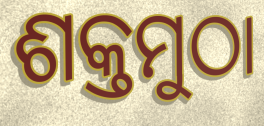
ଶକ୍ତମୁଠା